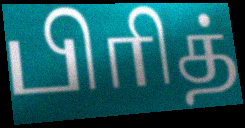
பிரித்